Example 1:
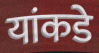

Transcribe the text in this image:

यांकडे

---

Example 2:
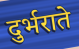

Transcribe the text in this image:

दुर्भराते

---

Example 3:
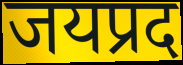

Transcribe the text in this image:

जयप्रद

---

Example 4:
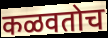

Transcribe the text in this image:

कळवतोच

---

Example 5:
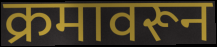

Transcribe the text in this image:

क्रमावरून